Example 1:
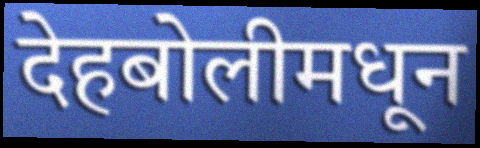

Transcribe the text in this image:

देहबोलीमधून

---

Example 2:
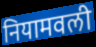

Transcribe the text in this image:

नियामवली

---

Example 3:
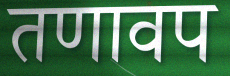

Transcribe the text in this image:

तणावप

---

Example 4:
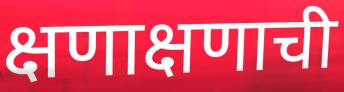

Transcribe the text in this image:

क्षणाक्षणाची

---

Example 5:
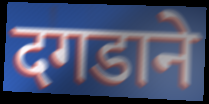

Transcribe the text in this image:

दगडाने